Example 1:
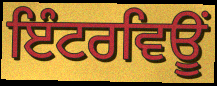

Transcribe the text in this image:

ਇੰਟਰਵਿਊਂ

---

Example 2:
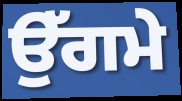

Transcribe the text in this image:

ਉੱਗਮੇ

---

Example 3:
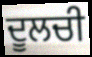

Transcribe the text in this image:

ਦੂਲਚੀ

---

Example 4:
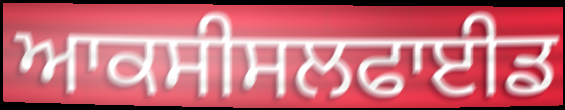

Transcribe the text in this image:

ਆਕਸੀਸਲਫਾਈਡ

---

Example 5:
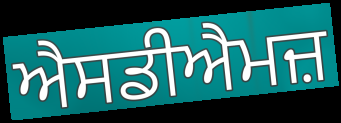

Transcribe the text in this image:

ਐਸਡੀਐਮਜ਼